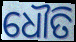
ଧୌତି